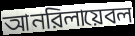
আনরিলায়েবল